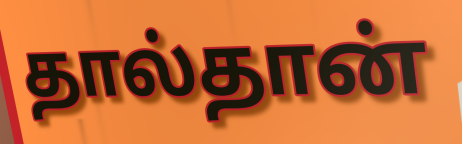
தால்தான்